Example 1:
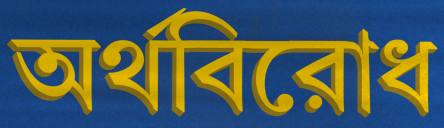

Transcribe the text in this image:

অর্থবিরোধ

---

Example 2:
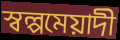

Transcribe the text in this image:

স্বল্পমেয়াদী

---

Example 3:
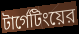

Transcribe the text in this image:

টার্গেটিংয়ের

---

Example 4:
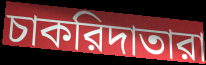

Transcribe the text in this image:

চাকরিদাতারা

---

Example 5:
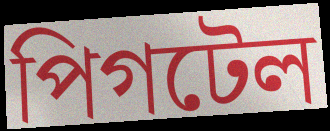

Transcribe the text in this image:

পিগটেল